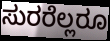
ಸುರರೆಲ್ಲರೂ